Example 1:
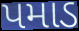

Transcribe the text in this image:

પમાડ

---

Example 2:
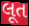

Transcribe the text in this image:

લૂત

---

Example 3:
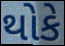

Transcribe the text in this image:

થોકે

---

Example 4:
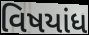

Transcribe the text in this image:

વિષયાંધ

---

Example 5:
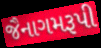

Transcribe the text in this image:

જૈનાગમરૂપી